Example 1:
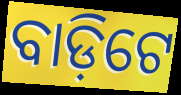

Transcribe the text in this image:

ବାଡ଼ିଟେ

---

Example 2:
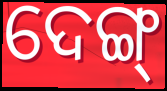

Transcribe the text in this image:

ଦେଙ୍ଗ୍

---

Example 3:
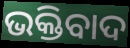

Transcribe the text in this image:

ଭକ୍ତିବାଦ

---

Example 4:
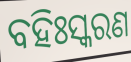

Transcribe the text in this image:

ବହିଃସ୍କରଣ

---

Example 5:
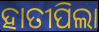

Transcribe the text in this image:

ହାତୀପିଲା